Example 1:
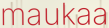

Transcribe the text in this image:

maukaa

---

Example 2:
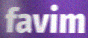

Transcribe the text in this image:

favim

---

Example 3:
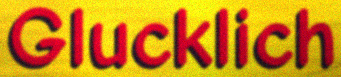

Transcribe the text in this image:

Glucklich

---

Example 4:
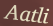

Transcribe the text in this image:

Aatli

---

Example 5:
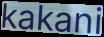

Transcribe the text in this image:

kakani